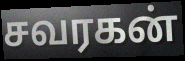
சவரகன்